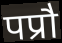
पप्रौ